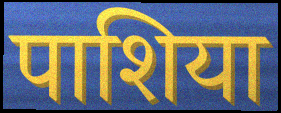
पाशिया